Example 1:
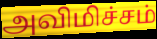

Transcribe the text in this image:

அவிமிச்சம்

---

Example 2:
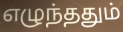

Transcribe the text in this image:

எழுந்ததும்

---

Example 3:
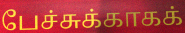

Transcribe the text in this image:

பேச்சுக்காகக்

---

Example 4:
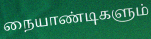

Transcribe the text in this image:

நையாண்டிகளும்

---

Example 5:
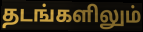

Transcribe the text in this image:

தடங்களிலும்